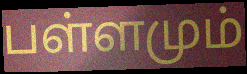
பள்ளமும்